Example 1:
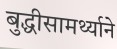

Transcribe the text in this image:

बुद्धीसामर्थ्याने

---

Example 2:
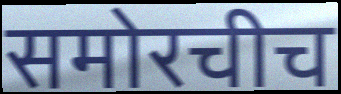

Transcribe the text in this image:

समोरचीच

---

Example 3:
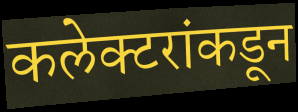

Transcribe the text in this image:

कलेक्टरांकडून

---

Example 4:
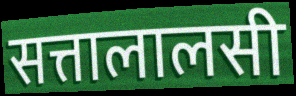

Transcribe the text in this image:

सत्तालालसी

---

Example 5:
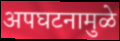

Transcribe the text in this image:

अपघटनामुळे